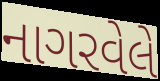
નાગરવેલે